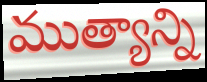
ముత్యాన్ని